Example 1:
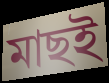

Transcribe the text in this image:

মাছই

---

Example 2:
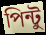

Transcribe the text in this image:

পিন্টু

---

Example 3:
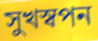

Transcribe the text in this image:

সুখস্বপন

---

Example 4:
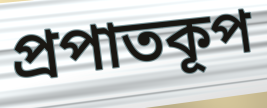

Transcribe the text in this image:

প্রপাতকূপ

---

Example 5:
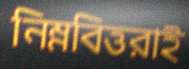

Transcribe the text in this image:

নিম্নবিত্তরাই